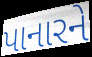
પાનારને